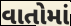
વાતોમાં